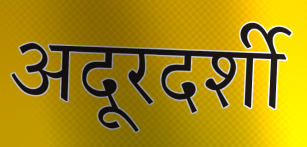
अदूरदर्शी